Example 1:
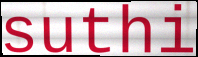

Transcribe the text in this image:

suthi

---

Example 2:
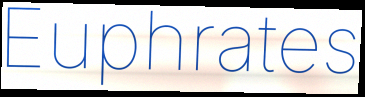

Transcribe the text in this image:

Euphrates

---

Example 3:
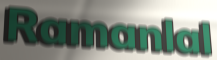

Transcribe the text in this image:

Ramanlal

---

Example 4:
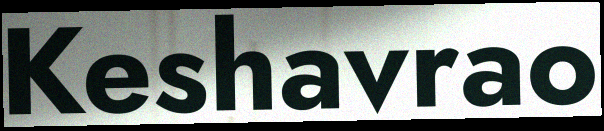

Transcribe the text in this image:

Keshavrao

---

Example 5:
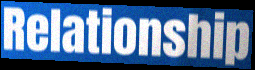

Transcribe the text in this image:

Relationship